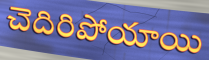
చెదిరిపోయాయి